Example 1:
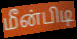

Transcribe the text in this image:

மீன்பிடி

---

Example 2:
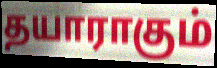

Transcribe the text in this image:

தயாராகும்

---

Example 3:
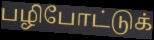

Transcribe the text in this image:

பழிபோட்டுக்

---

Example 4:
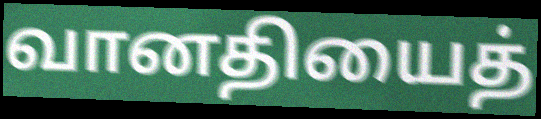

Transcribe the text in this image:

வானதியைத்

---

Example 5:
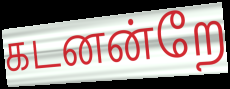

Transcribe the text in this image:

கடனன்றே